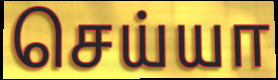
செய்யா